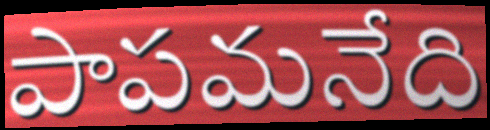
పాపమనేది